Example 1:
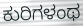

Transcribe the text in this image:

ಕುರಿಗಳಂಥ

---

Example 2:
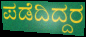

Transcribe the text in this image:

ಪಡೆದಿದ್ದರ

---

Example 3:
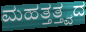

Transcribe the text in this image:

ಮಹತ್ತತ್ತ್ವದ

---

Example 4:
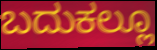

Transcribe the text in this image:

ಬದುಕಲ್ಲೂ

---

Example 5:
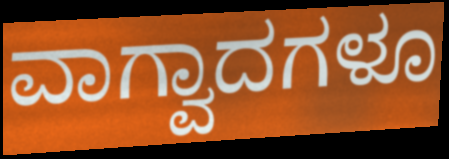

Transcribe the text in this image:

ವಾಗ್ವಾದಗಳೂ